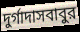
দুর্গাদাসবাবুর